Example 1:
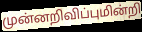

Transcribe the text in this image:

முன்னறிவிப்புமின்றி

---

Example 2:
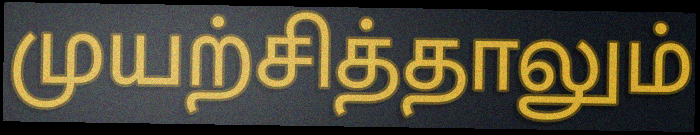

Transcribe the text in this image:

முயற்சித்தாலும்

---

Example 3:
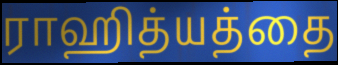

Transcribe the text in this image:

ராஹித்யத்தை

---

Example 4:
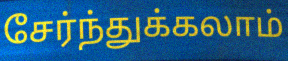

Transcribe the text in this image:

சேர்ந்துக்கலாம்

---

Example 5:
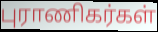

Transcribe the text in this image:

புராணிகர்கள்